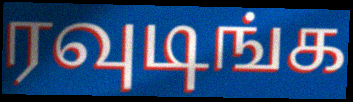
ரவுடிங்க